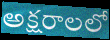
అక్షరాలలో